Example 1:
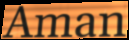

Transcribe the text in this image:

Aman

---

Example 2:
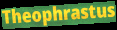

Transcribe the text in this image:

Theophrastus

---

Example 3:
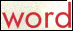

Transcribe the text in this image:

word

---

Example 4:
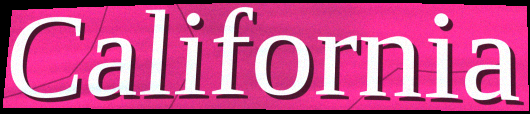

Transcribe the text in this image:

California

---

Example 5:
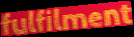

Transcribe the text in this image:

fulfilment